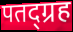
पतद्ग्रह